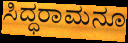
ಸಿದ್ಧರಾಮನೂ